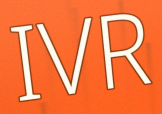
IVR